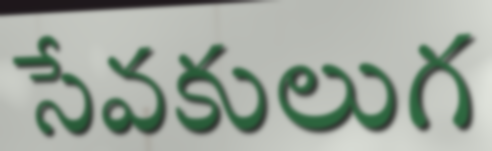
సేవకులుగ